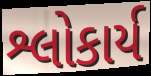
શ્લોકાર્ય